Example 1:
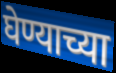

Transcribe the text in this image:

घेण्याच्या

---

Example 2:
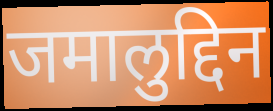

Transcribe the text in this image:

जमालुद्दिन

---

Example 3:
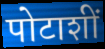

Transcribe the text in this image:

पोटाशीं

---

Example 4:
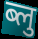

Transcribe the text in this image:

ब्लु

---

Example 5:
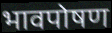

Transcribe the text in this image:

भावपोषण